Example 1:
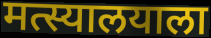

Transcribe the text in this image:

मत्स्यालयाला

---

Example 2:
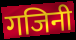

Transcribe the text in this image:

गजिनी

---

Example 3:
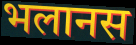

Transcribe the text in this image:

भलानस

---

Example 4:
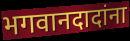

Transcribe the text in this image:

भगवानदादांना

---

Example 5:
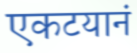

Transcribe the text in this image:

एकटयानं